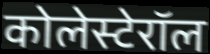
कोलेस्टेरॉल